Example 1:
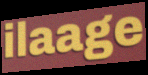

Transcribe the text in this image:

ilaage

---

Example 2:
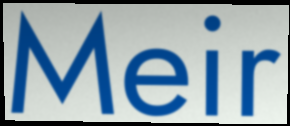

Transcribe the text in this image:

Meir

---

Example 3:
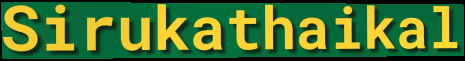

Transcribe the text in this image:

Sirukathaikal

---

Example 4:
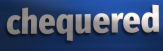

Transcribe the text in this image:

chequered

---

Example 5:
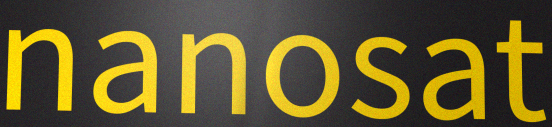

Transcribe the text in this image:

nanosat